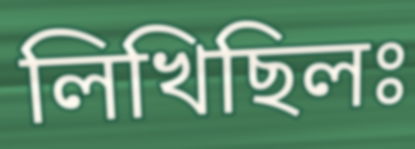
লিখিছিলঃ